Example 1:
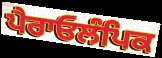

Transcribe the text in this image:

ਪੈਰਾਓਲੰਪਿਕ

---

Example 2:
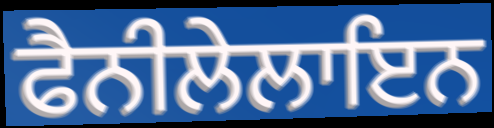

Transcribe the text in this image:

ਫੈਨੀਲੇਲਾਇਨ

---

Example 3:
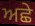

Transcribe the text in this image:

ਅਛੇ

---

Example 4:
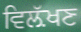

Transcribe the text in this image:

ਵਿਲ਼ੱਖਣ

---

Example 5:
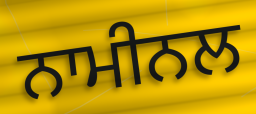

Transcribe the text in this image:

ਨਾਮੀਨਲ